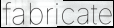
fabricate